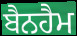
ਬੈਨਹੈਮ